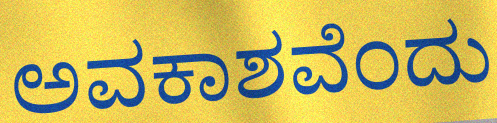
ಅವಕಾಶವೆಂದು